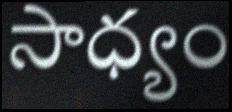
సాధ్యం